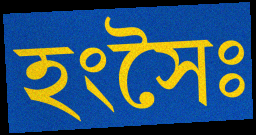
হংসৈঃ